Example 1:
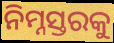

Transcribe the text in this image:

ନିମ୍ନସ୍ତରକୁ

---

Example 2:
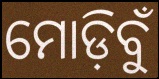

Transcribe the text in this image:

ମୋଡ଼ିବୁଁ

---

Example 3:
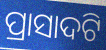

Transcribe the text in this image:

ପ୍ରାସାଦଟି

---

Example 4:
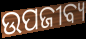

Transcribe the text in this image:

ଉପଜୀବ୍ୟ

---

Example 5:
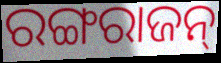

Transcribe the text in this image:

ରଙ୍ଗରାଜନ୍